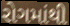
રોગમાંથી